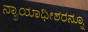
ನ್ಯಾಯಾಧೀಶರನ್ನೂ